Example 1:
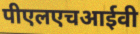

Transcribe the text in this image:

पीएलएचआईवी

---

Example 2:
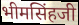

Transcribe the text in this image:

भीमसिंहजी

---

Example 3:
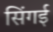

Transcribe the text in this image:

सिंगई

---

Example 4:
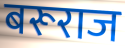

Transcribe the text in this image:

बरूराज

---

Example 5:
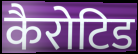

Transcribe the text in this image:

कैरोटिड